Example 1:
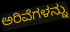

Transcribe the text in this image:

ಅರಿವೆಗಳನ್ನು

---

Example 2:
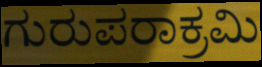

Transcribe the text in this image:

ಗುರುಪರಾಕ್ರಮಿ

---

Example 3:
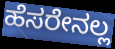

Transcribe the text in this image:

ಹೆಸರೇನಲ್ಲ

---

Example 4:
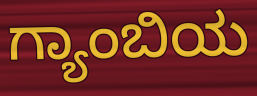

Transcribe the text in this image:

ಗ್ಯಾಂಬಿಯ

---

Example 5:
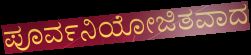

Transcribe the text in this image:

ಪೂರ್ವನಿಯೋಜಿತವಾದ